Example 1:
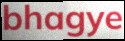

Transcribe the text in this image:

bhagye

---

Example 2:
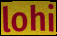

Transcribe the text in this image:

lohi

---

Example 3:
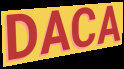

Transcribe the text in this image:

DACA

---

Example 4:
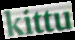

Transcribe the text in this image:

kittu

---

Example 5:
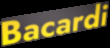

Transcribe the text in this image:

Bacardi